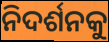
ନିଦର୍ଶନକୁ